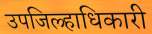
उपजिल्हाधिकारी